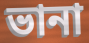
ভানা